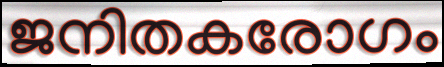
ജനിതകരോഗം